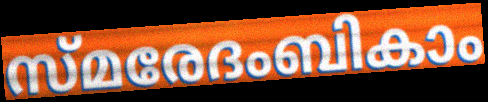
സ്മരേദംബികാം